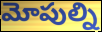
మోపుల్ని